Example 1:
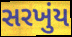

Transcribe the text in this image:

સરખુંય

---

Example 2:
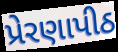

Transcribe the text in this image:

પ્રેરણાપીઠ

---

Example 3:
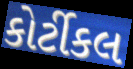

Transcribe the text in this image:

કોર્ટીકલ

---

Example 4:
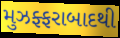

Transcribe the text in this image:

મુઝફ્ફરાબાદથી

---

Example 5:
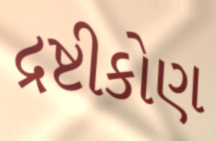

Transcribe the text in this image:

દ્રષ્ટીકોણ